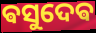
ଵସୁଦେଵ